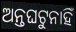
ଅନ୍ତଘଟୁନାହିଁ